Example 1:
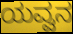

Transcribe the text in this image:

ಯವ್ವನ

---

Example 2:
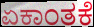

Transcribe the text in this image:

ಏಕಾಂತಕೆ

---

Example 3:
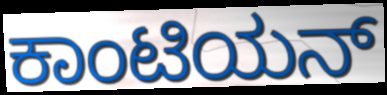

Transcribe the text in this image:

ಕಾಂಟಿಯನ್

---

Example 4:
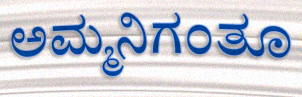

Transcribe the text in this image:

ಅಮ್ಮನಿಗಂತೂ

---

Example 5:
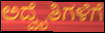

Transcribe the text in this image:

ಅದ್ವೈತಿಗಳಿಗೆ